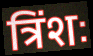
त्रिंशः